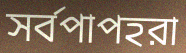
সর্বপাপহরা